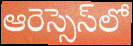
ఆరెస్సెస్‌లో